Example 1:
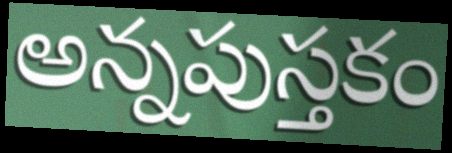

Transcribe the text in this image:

అన్నపుస్తకం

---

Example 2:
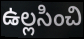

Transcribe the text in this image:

ఉల్లసించి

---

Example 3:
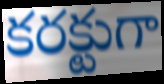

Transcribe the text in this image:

కరక్టుగా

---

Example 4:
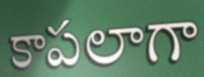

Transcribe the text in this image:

కాపలాగా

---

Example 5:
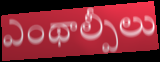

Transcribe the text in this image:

ఎంథాల్పీలు